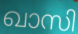
ഖാസി